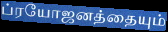
ப்ரயோஜனத்தையும்